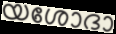
യശോദാ